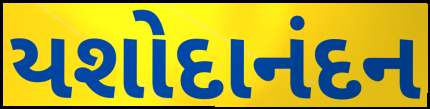
યશોદાનંદન